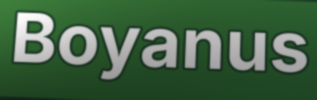
Boyanus